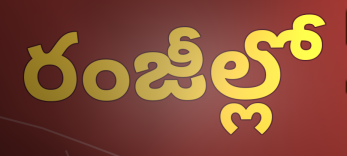
రంజీల్లో